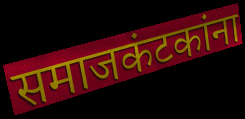
समाजकंटकांना